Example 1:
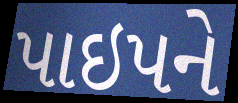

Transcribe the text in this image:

પાઇપને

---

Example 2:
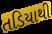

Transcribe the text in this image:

તડિયાથી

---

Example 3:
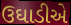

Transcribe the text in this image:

ઉઘાડીએ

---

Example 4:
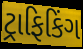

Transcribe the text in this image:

ટ્રાફિકિંગ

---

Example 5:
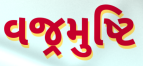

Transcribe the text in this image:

વજ્રમુષ્ટિ